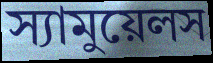
স্যামুয়েলস